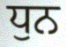
ਧੁਨ